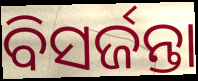
ବିସର୍ଜନ୍ତା